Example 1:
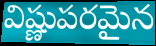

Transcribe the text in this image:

విష్ణుపరమైన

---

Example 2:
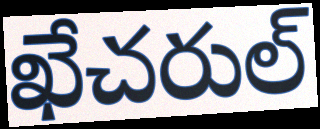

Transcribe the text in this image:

ఖేచరుల్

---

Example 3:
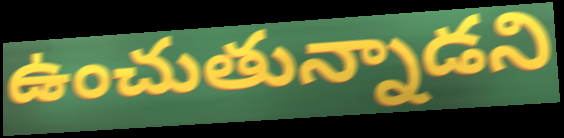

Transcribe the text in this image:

ఉంచుతున్నాడని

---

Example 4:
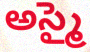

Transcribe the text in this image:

అస్మై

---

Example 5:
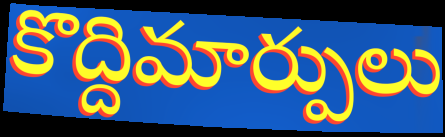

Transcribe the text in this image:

కొద్దిమార్పులు